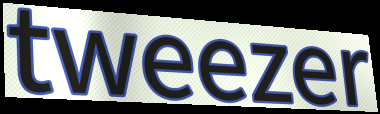
tweezer